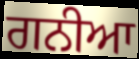
ਗਨੀਆ